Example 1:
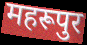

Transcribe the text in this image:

महरूपुर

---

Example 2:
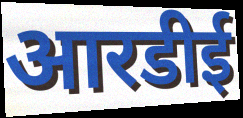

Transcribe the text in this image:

आरडीई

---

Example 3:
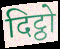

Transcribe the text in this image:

दिट्ठो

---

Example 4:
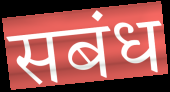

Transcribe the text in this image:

सबंध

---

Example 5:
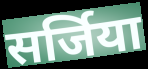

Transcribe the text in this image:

सर्जिया